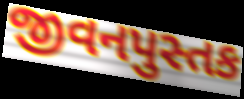
જીવનપુસ્તક